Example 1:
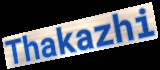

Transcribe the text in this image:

Thakazhi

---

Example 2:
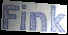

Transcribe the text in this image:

Fink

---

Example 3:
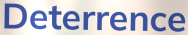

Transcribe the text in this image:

Deterrence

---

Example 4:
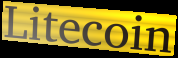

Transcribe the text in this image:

Litecoin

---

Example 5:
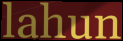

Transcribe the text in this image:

lahun